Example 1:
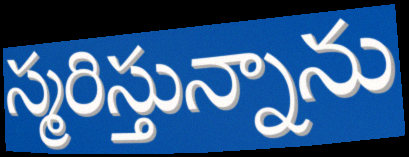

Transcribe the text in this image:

స్మరిస్తున్నాను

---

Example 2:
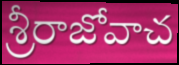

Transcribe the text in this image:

శ్రీరాజోవాచ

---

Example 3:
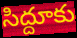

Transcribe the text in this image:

సిద్దూకు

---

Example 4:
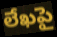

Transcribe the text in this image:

లేఖపై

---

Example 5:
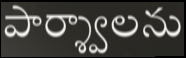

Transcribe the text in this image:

పార్శ్వాలను